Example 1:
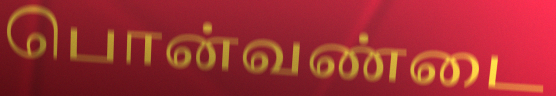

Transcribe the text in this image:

பொன்வண்டை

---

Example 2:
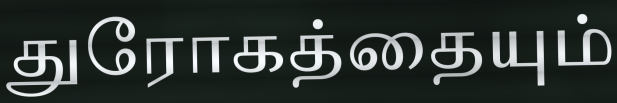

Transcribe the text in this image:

துரோகத்தையும்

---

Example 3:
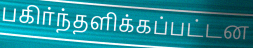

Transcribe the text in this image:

பகிர்ந்தளிக்கப்பட்டன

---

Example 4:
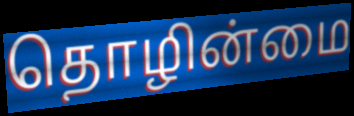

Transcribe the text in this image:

தொழின்மை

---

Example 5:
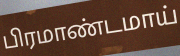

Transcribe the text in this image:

பிரமாண்டமாய்